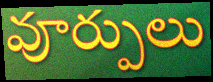
వూర్పులు